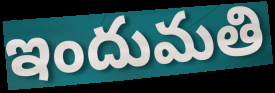
ఇందుమతి